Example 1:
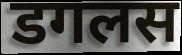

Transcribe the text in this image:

डगलस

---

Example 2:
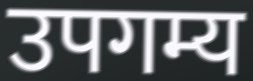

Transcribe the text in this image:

उपगम्य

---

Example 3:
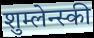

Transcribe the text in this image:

शुम्लेन्स्की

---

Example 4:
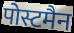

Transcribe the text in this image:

पोस्टमैन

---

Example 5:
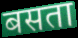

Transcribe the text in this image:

बसता